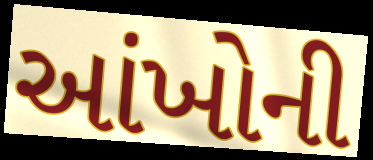
આંખોની